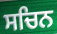
ਸਚਿਨ